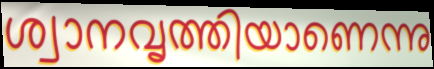
ശ്വാനവൃത്തിയാണെന്നു